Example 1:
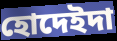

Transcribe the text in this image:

হোদেইদা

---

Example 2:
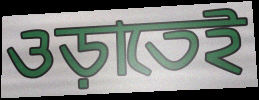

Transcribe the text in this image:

ওড়াতেই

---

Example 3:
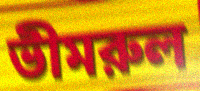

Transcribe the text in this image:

ভীমরুল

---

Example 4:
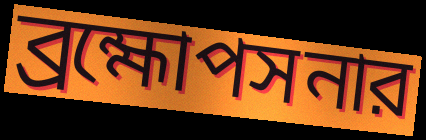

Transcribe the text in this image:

ব্রহ্মোপসনার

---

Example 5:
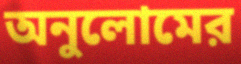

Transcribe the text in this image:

অনুলোমের